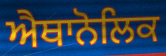
ਐਥਾਨੋਲਿਕ